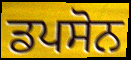
ਡਪਸੋਨ